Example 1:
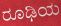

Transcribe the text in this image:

ರೂಢಿಯ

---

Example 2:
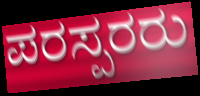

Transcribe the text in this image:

ಪರಸ್ಪರರು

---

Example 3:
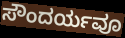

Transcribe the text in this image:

ಸೌಂದರ್ಯವೂ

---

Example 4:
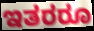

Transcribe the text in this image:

ಇತರರೂ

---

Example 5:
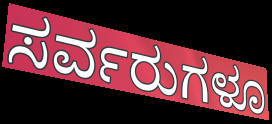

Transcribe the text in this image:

ಸರ್ವರುಗಳೂ